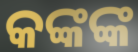
କଙ୍କଙ୍କ